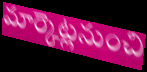
మార్కెట్లనుంచి